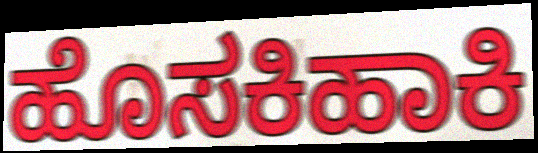
ಹೊಸಕಿಹಾಕಿ